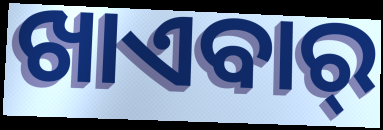
ଖାଏବାର୍